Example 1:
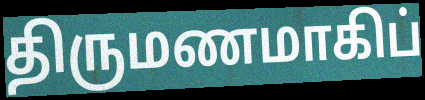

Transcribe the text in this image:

திருமணமாகிப்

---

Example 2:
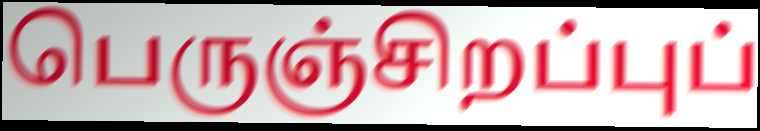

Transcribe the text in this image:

பெருஞ்சிறப்புப்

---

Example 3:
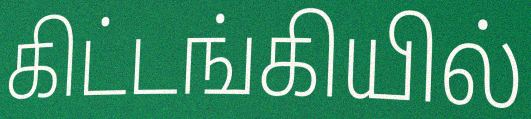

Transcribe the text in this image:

கிட்டங்கியில்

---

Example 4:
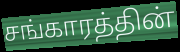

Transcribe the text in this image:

சங்காரத்தின்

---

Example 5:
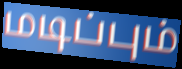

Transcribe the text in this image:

மடிப்பும்